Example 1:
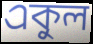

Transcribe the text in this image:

একুল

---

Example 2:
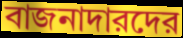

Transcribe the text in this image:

বাজনাদারদের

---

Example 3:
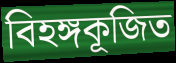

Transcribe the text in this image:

বিহঙ্গকূজিত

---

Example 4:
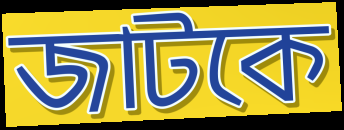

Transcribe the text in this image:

জাটকে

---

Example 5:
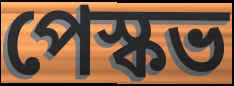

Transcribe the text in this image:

পেস্কভ